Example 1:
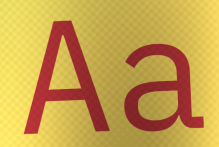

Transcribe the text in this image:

Aa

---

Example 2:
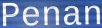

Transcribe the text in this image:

Penan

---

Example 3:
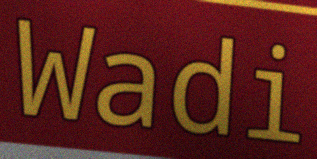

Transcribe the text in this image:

Wadi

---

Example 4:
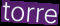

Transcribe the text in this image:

torre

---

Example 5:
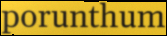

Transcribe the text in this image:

porunthum